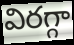
విరగ్గా